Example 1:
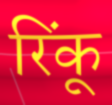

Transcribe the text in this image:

रिंकू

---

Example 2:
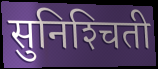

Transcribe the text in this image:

सुनिश्चिती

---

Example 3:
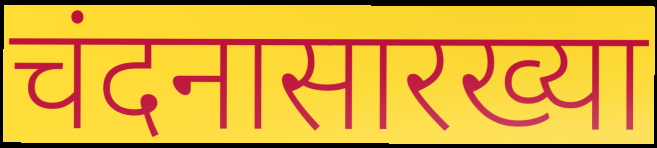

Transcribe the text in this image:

चंदनासारख्या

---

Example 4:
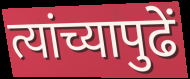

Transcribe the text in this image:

त्यांच्यापुढें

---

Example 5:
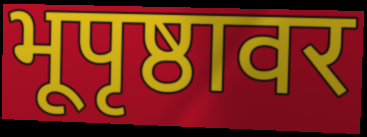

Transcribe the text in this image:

भूपृष्ठावर